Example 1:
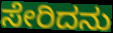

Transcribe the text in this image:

ಸೇರಿದನು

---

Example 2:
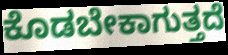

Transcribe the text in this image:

ಕೊಡಬೇಕಾಗುತ್ತದೆ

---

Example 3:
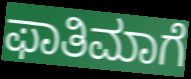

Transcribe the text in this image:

ಫಾತಿಮಾಗೆ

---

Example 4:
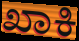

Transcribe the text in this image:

ಖಾಕಿ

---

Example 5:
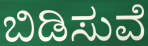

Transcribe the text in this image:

ಬಿಡಿಸುವೆ